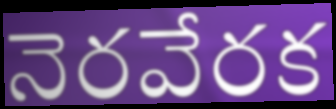
నెరవేరక